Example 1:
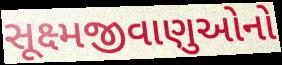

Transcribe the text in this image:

સૂક્ષ્મજીવાણુઓનો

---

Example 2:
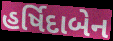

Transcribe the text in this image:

હર્ષિદાબેન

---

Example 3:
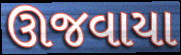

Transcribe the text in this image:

ઊજવાયા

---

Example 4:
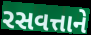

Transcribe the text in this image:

રસવત્તાને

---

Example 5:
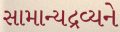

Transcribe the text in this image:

સામાન્યદ્રવ્યને